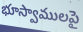
భూస్వాములపై